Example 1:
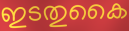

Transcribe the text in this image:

ഇടതുകൈ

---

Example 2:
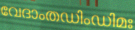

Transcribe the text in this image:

വേദാംതഡിംഡിമഃ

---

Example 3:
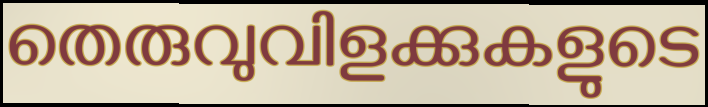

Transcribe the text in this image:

തെരുവുവിളക്കുകളുടെ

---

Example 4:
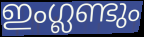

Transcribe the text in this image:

ഇംഗ്ലണ്ടും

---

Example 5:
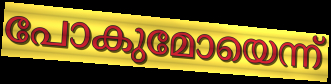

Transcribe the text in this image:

പോകുമോയെന്ന്